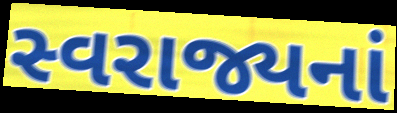
સ્વરાજ્યનાં